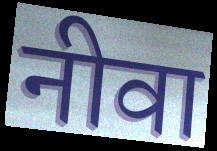
नीवा